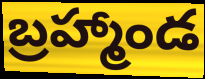
బ్రహ్మాండ